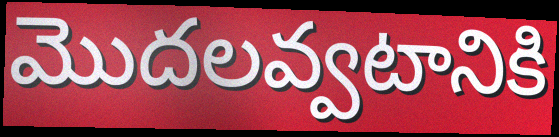
మొదలవ్వటానికి